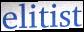
elitist